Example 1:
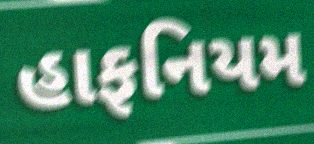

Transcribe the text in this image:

હાફનિયમ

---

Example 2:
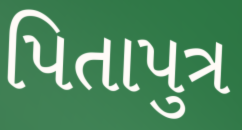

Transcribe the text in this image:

પિતાપુત્ર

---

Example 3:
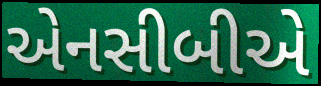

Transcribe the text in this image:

એનસીબીએ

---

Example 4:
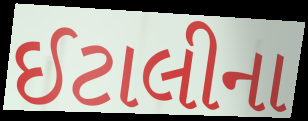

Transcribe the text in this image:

ઈટાલીના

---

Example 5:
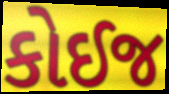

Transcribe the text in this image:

કોઈજ